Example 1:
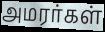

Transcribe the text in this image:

அமரர்கள்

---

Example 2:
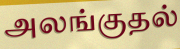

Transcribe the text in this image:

அலங்குதல்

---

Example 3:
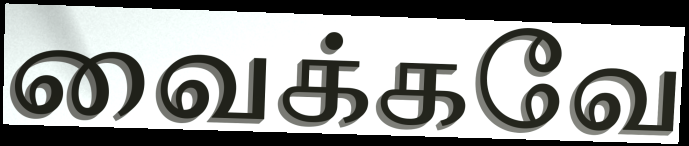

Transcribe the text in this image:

வைக்கவே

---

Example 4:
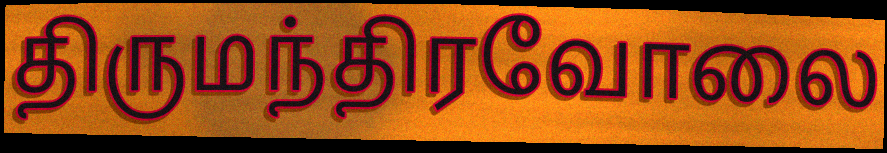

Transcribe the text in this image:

திருமந்திரவோலை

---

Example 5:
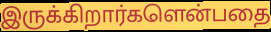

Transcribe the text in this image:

இருக்கிறார்களென்பதை